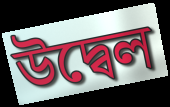
উদ্বেল